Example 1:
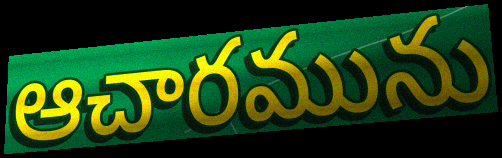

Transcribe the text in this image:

ఆచారమును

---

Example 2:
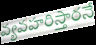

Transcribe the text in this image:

వ్యవహరిస్తారనే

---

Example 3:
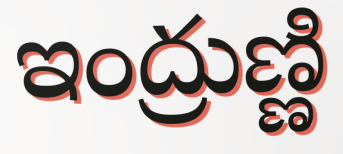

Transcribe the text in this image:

ఇంద్రుణ్ణి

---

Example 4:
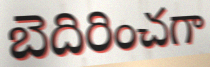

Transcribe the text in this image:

బెదిరించగా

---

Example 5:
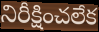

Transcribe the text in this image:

నిరీక్షించలేక